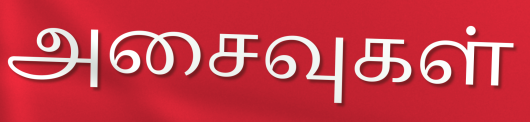
அசைவுகள்